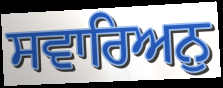
ਸਵਾਰਿਅਨੁ